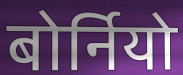
बोर्नियो